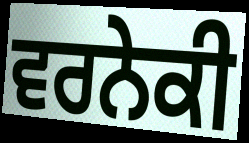
ਵਰਨੇਕੀ